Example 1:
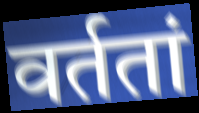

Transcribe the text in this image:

वर्ततां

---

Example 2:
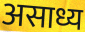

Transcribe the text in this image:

असाध्य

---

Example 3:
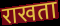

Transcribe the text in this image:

राखता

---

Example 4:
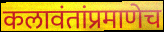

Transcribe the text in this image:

कलावंतांप्रमाणेच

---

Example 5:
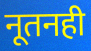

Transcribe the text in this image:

नूतनही